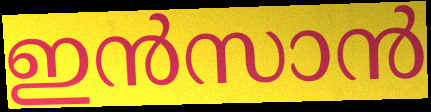
ഇൻസാൻ